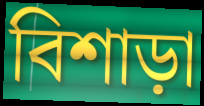
বিশাড়া